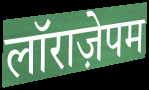
लॉराज़ेपम